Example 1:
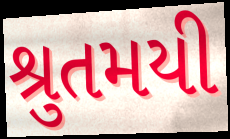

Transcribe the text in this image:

શ્રુતમયી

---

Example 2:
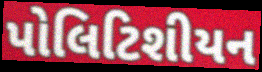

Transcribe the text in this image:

પોલિટિશીયન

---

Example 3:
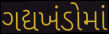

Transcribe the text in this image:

ગદ્યખંડોમાં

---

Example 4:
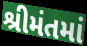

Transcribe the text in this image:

શ્રીમંતમાં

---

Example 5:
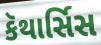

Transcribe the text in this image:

કૅથાર્સિસ